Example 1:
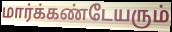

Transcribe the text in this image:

மார்க்கண்டேயரும்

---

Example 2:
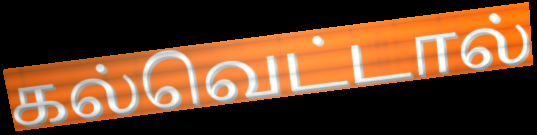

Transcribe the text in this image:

கல்வெட்டால்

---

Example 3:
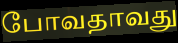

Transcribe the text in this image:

போவதாவது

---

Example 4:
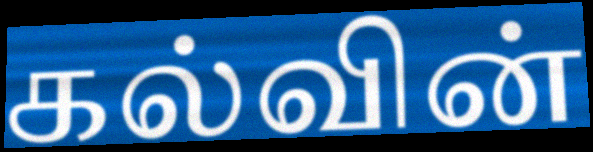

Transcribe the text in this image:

கல்வின்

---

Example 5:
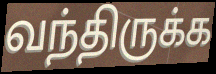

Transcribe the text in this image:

வந்திருக்க